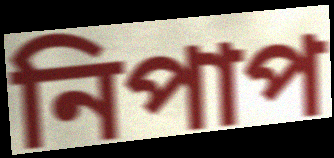
নিপাপ